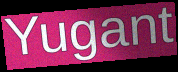
Yugant